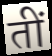
तीं